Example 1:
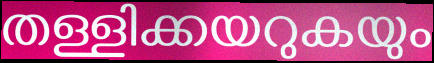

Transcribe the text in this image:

തള്ളിക്കയറുകയും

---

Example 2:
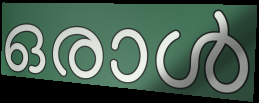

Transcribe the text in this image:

ഒരാൾ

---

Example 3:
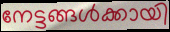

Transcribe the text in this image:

നേട്ടങ്ങൾക്കായി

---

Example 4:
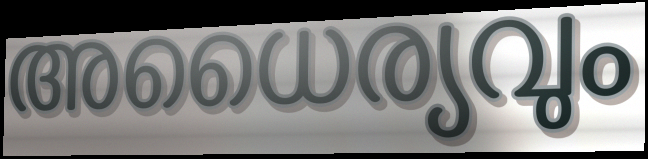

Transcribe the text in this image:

അധൈര്യവും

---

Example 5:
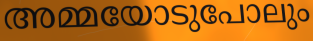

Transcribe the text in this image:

അമ്മയോടുപോലും